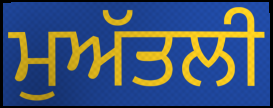
ਮੁਅੱਤਲੀ